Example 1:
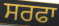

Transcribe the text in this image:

ਸਰਫਾ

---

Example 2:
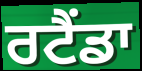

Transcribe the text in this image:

ਰਟੈਂਡਾ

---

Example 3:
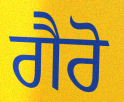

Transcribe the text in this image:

ਗੈਰੋ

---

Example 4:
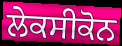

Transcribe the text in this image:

ਲੇਕਸੀਕੋਨ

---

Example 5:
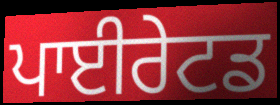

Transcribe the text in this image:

ਪਾਈਰੇਟਡ